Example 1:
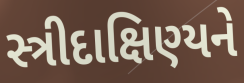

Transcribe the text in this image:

સ્ત્રીદાક્ષિણ્યને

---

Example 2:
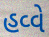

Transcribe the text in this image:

હવ્વે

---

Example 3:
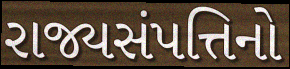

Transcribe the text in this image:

રાજ્યસંપત્તિનો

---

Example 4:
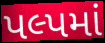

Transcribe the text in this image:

પલ્પમાં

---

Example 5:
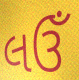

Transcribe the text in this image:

લઉઁ